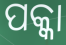
ପକ୍କା